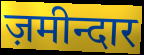
ज़मीन्दार